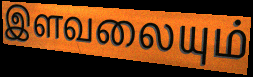
இளவலையும்